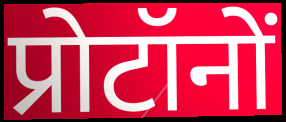
प्रोटॉनों